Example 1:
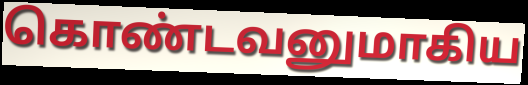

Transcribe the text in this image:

கொண்டவனுமாகிய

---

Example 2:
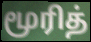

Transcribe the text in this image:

மூரித்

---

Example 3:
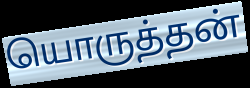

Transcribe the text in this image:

யொருத்தன்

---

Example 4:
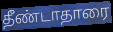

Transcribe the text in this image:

தீண்டாதாரை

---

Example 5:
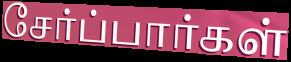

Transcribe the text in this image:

சேர்ப்பார்கள்